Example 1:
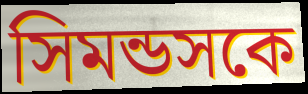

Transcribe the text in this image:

সিমন্ডসকে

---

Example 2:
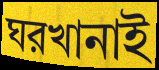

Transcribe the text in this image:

ঘরখানাই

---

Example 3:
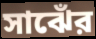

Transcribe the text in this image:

সাঝেঁর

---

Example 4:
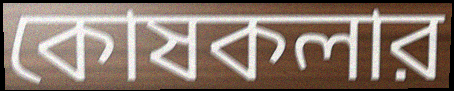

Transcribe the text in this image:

কোষকলার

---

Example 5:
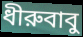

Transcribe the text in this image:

ধীরুবাবু